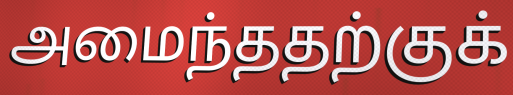
அமைந்ததற்குக்